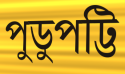
পুডুপট্টি